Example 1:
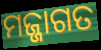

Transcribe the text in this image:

ମଜ୍ଜାଗତ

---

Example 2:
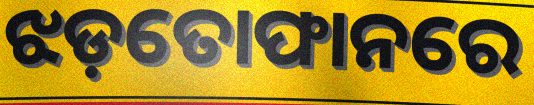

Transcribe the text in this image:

ଝଡ଼ତୋଫାନରେ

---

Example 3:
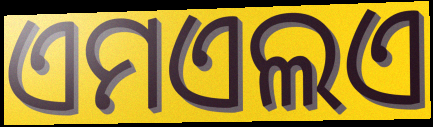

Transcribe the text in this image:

ଏମଏଲଏ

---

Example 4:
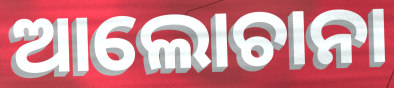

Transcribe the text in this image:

ଆଲୋଚାନା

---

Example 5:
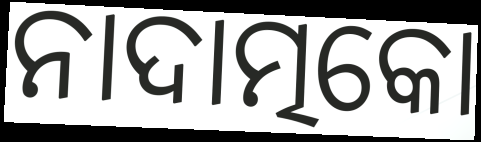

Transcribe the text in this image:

ନାଦାତ୍ମକୋ